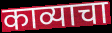
काव्याचा